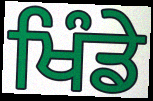
ਖਿੰਡੇ